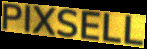
PIXSELL